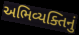
અભિવ્યક્તિનું